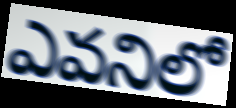
ఎవనిలో